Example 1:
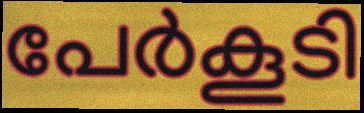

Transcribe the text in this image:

പേർകൂടി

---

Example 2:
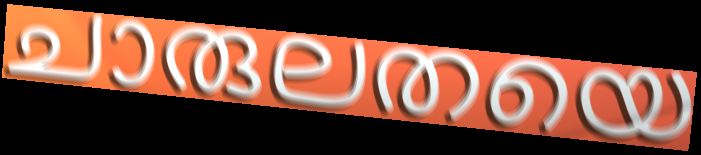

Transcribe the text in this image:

ചാരുലതയെ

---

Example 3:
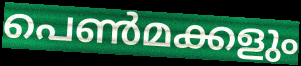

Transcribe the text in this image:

പെൺമക്കളും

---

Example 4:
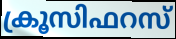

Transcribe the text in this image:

ക്രൂസിഫറസ്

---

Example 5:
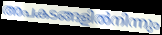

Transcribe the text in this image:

അപകടങ്ങളിൽനിന്നും